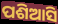
ପଶିଆସି